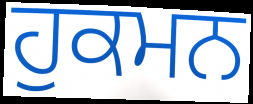
ਹੁਕਮਨ